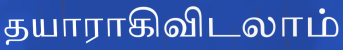
தயாராகிவிடலாம்